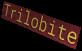
Trilobite